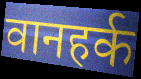
वानहर्क